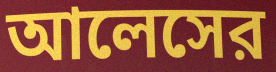
আলেসের